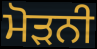
ਮੋੜਨੀ